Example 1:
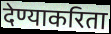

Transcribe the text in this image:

देण्याकरिता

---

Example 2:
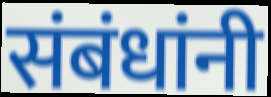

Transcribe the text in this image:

संबंधांनी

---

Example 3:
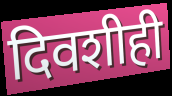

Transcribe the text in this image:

दिवशीही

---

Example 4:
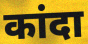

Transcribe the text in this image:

कांदा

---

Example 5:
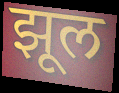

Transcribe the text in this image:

झूल